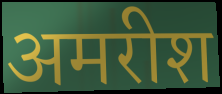
अमरीश